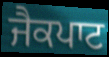
ਜੈਕਪਾਟ